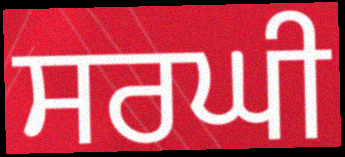
ਸਰਘੀ